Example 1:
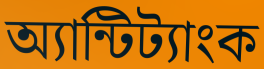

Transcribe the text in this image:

অ্যান্টিট্যাংক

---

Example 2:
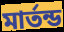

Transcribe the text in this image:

মার্তন্ড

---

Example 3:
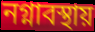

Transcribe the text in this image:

নগ্নাবস্থায়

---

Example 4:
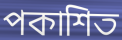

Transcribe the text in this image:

পকাশিত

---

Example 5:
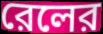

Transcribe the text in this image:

রেলের